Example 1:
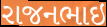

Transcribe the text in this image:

રાજનભાઇ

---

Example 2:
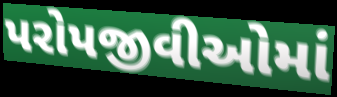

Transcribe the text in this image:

પરોપજીવીઓમાં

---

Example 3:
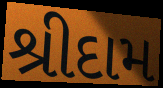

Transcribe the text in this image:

શ્રીદામ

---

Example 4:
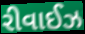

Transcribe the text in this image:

રીવાઈઝ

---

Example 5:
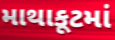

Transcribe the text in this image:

માથાકૂટમાં